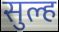
सुल्ह